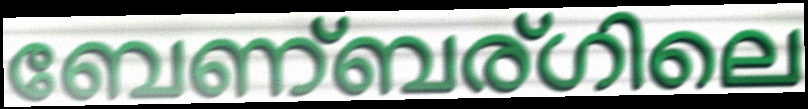
ബേണ്ബര്ഗിലെ